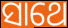
ସାଥେ